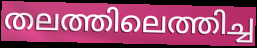
തലത്തിലെത്തിച്ച